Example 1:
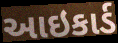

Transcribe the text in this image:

આઇકાર્ડ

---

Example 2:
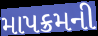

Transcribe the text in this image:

માપક્રમની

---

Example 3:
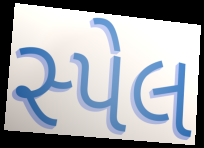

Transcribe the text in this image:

સ્પેલ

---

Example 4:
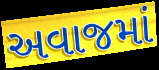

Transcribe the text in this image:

અવાજમાં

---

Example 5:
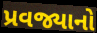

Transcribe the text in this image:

પ્રવજ્યાનો